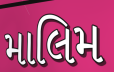
માલિમ